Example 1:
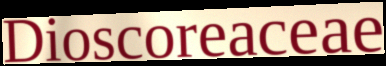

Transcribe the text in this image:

Dioscoreaceae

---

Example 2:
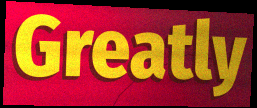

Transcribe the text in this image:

Greatly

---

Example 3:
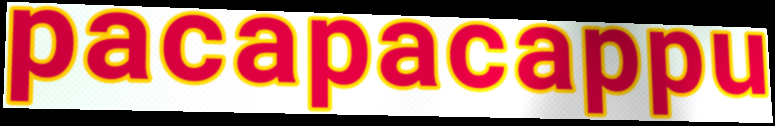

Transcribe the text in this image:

pacapacappu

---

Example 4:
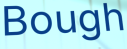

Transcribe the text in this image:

Bough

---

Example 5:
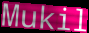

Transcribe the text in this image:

Mukil